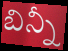
బిన్నీ